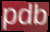
pdb